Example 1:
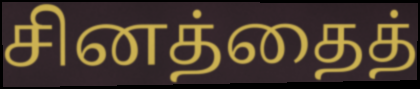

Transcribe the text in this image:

சினத்தைத்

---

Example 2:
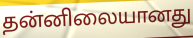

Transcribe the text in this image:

தன்னிலையானது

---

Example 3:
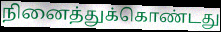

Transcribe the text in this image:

நினைத்துக்கொண்டது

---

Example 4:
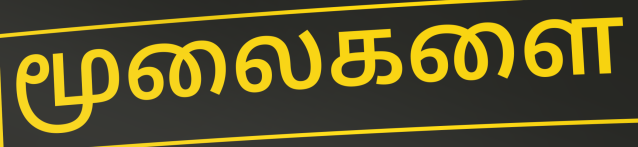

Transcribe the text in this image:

மூலைகளை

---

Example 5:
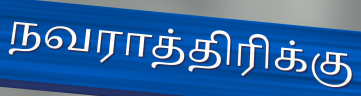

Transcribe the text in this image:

நவராத்திரிக்கு